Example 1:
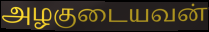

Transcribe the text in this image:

அழகுடையவன்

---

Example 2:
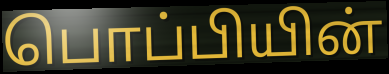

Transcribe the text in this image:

பொப்பியின்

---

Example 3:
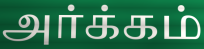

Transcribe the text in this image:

அர்க்கம்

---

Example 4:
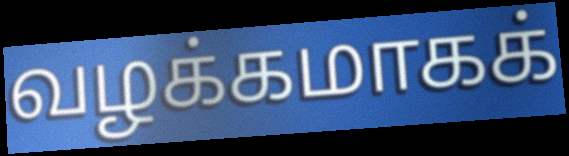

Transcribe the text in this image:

வழக்கமாகக்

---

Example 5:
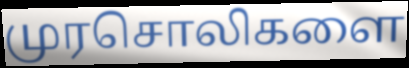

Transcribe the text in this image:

முரசொலிகளை